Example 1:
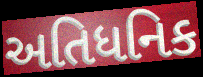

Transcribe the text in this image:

અતિધનિક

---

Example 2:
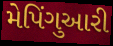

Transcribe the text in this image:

મેપિંગુઆરી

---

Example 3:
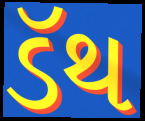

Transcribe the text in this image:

ડૅથ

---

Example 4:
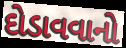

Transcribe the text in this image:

દોડાવવાનો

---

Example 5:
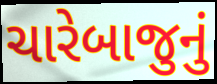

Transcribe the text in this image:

ચારેબાજુનું